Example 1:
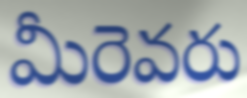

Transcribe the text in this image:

మీరెవరు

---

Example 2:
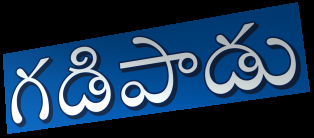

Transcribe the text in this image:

గడిపాడు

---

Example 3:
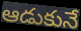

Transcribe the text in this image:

ఆడుకునే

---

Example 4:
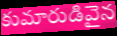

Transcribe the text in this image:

కుమారుడివైన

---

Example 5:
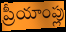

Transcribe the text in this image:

ప్రీయాంప్లు